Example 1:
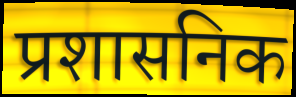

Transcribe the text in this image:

प्रशासनिक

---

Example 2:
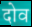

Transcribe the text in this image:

दोव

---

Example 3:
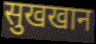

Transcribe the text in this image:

सुखखान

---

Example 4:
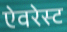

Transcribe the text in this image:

ऐवरेस्ट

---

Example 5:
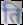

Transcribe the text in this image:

ति